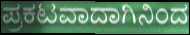
ಪ್ರಕಟವಾದಾಗಿನಿಂದ